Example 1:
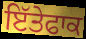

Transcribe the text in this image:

ਇੱਤੇਫਾਕ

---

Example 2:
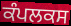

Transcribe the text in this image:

ਕੰਪਲਕਸ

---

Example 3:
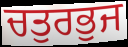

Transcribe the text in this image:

ਚਤੁਰਭੁਜ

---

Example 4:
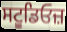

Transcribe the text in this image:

ਸਟੂਡਿਓਜ਼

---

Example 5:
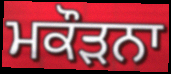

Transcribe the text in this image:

ਮਕੌੜਨਾ